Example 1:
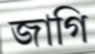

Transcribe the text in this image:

জাগি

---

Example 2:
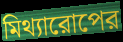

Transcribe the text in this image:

মিথ্যারোপের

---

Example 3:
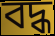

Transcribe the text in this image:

বদ্ধ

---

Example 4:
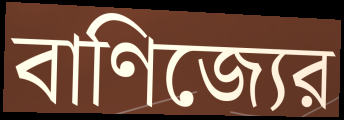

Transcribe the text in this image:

বাণিজ্যের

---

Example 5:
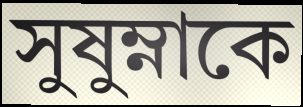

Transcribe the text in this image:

সুষুম্নাকে